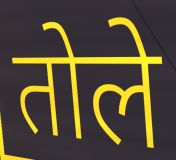
तोले